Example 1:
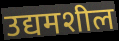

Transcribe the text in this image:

उद्यमशील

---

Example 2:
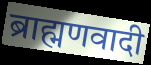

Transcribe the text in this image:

ब्राह्मणवादी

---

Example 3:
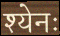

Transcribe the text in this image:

श्येनः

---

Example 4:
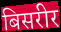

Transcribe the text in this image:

बिसरीर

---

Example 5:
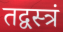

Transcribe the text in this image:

तद्वस्त्रं